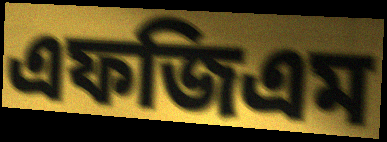
এফজিএম